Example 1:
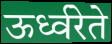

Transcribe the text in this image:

ऊर्ध्वरेते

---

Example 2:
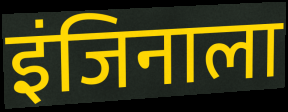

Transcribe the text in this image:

इंजिनाला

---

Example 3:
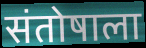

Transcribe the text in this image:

संतोषाला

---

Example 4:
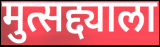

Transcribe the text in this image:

मुत्सद्द्याला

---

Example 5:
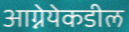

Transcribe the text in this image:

आग्नेयेकडील